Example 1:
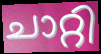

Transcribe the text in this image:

ചാറ്റി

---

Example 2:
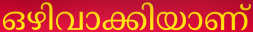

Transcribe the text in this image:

ഒഴിവാക്കിയാണ്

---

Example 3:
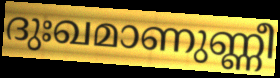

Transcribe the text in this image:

ദുഃഖമാണുണ്ണീ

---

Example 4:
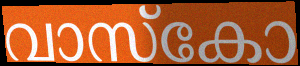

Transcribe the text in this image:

വാസ്കോ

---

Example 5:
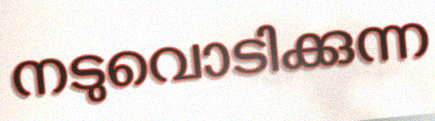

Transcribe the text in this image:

നടുവൊടിക്കുന്ന